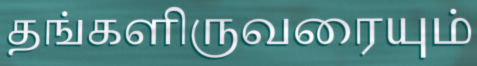
தங்களிருவரையும்